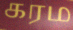
கரம